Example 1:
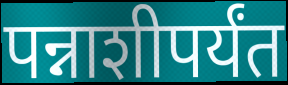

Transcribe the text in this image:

पन्नाशीपर्यंत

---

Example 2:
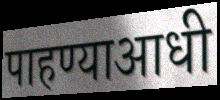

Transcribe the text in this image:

पाहण्याआधी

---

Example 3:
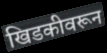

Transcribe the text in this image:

खिडकीवरून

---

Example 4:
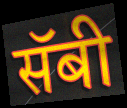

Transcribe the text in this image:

सॅबी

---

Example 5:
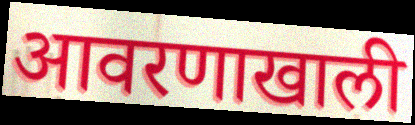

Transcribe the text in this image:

आवरणाखाली